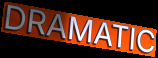
DRAMATIC